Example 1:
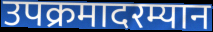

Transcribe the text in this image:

उपक्रमादरम्यान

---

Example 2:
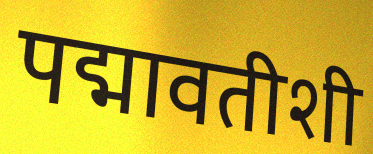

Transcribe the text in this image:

पद्मावतीशी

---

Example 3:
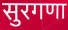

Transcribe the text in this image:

सुरगणा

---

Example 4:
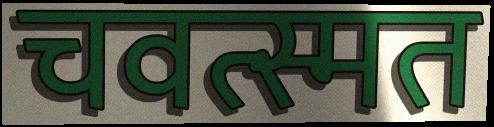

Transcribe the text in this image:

चवत्स्मत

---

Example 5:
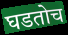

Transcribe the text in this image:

घडतोच